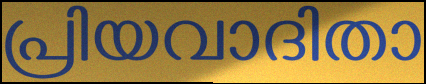
പ്രിയവാദിതാ